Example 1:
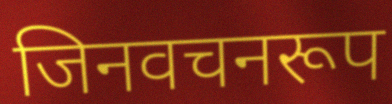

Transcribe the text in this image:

जिनवचनरूप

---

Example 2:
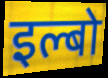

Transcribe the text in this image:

इल्बो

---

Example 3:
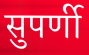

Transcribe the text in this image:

सुपर्णी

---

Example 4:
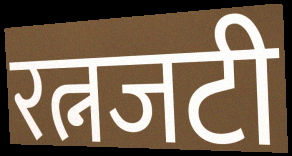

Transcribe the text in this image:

रत्नजटी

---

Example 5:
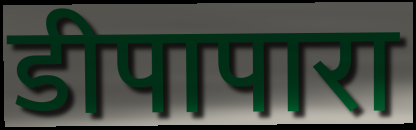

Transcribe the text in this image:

डीपापारा